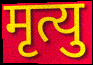
मृत्यु